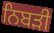
ਨਿਬੜੀ